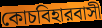
কোচবিহারবাসী